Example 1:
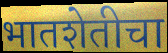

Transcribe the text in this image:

भातशेतीचा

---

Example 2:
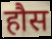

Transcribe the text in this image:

हौस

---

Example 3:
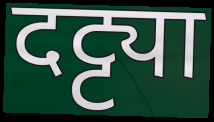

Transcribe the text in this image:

दट्ट्या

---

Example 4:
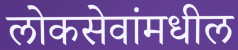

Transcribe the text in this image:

लोकसेवांमधील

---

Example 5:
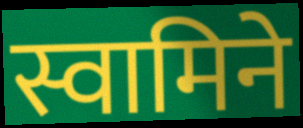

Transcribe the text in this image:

स्वामिने